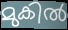
മുകിൽ